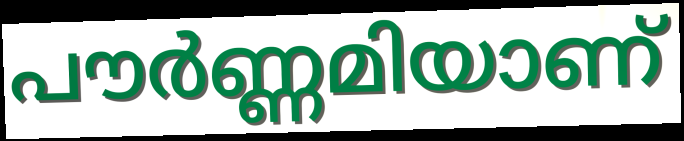
പൗർണ്ണമിയാണ്